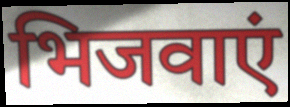
भिजवाएं